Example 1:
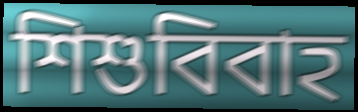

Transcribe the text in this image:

শিশুবিবাহ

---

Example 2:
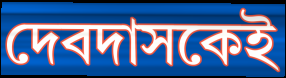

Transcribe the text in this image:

দেবদাসকেই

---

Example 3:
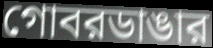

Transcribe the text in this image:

গোবরডাঙার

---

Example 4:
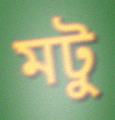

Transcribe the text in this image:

মটু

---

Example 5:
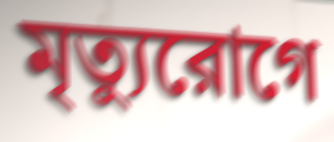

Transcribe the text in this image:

মৃত্যুরোগে